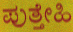
ಪುತ್ತೇಹಿ